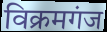
विक्रमगंज